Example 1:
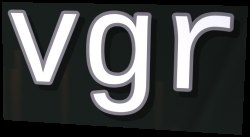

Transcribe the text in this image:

vgr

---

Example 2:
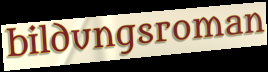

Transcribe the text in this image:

bildungsroman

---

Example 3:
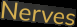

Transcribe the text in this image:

Nerves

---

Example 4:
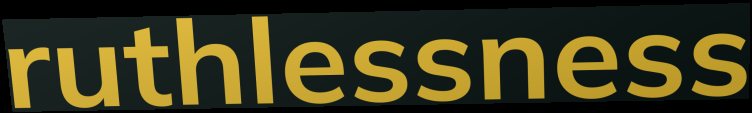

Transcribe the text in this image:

ruthlessness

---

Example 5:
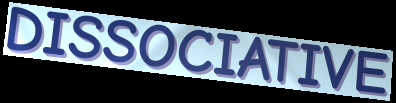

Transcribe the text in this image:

DISSOCIATIVE